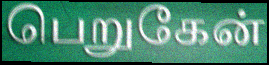
பெறுகேன்